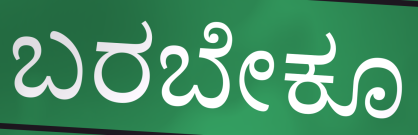
ಬರಬೇಕೂ